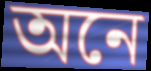
অনে